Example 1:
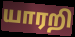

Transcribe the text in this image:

யாரறி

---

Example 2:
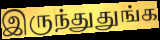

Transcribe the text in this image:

இருந்துதுங்க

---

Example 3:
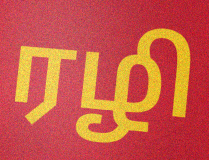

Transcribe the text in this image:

ரழி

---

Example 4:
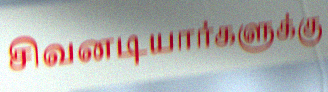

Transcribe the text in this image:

சிவனடியார்களுக்கு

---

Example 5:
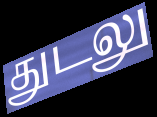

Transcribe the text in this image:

துடலு